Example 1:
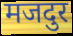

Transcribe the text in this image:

मजदुर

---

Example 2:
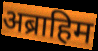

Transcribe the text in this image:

अब्राहिम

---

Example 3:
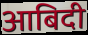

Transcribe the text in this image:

आबिदी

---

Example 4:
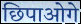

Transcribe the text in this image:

छिपाओगे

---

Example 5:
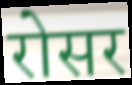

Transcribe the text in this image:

रोसर